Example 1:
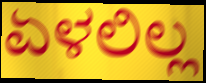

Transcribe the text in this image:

ಏಳಲಿಲ್ಲ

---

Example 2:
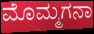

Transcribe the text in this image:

ಮೊಮ್ಮಗನಾ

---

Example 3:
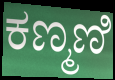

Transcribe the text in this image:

ಕಣ್ಮಣಿ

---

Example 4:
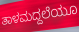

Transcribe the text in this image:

ತಾಳಮದ್ದಲೆಯೂ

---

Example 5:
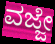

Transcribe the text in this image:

ವಜ್ಜೇ